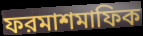
ফরমাশমাফিক